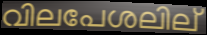
വിലപേശലില്